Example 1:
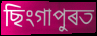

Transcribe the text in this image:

ছিংগাপুৰত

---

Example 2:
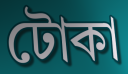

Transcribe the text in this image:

টোকা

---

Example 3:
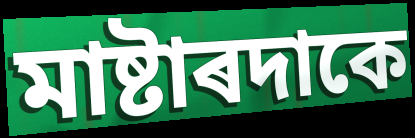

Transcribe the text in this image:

মাষ্টাৰদাকে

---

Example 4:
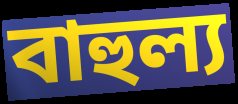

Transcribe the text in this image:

বাহুল্য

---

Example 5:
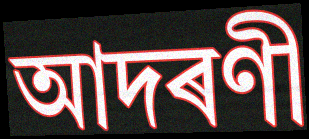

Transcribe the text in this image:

আদৰণী